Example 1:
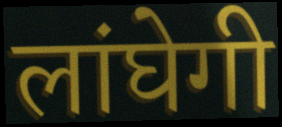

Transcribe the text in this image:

लांघेगी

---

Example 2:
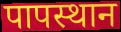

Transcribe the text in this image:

पापस्थान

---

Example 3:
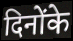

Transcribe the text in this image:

दिनोंके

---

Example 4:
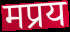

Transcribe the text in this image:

मप्रय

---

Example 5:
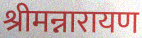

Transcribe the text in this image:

श्रीमन्नारायण